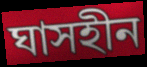
ঘাসহীন